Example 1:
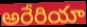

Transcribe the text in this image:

అరేరియా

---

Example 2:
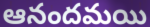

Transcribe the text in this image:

ఆనందమయి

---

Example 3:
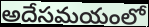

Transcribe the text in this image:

అదేసమయంలో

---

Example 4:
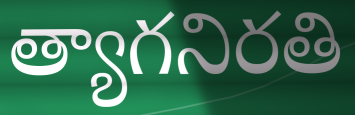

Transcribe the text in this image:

త్యాగనిరతి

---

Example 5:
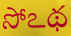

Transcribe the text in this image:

సోఽథ